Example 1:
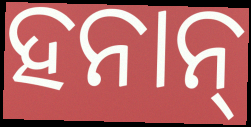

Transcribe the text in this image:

ହନାନ୍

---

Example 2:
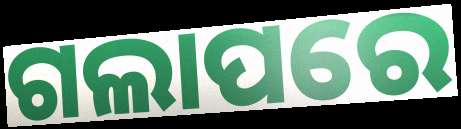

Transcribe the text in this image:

ଗଲାପରେ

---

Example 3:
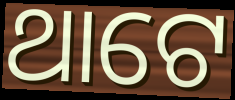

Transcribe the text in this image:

ଥାଟେ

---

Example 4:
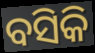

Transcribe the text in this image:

ବସିକି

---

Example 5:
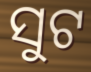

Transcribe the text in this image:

ସୁଟ